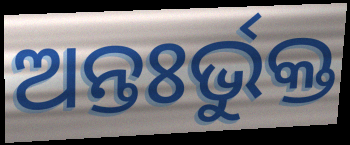
ଅନ୍ତଃର୍ଭୁକ୍ତ